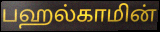
பஹல்காமின்